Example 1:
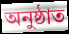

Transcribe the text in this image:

অনুষ্ঠাত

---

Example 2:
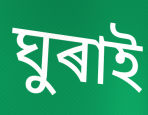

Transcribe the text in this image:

ঘুৰাই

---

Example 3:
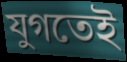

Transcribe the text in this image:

যুগতেই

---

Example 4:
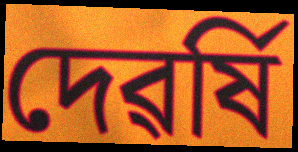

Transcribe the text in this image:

দেৱৰ্ষি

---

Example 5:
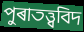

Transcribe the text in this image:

পুৰাতত্ত্ববিদ